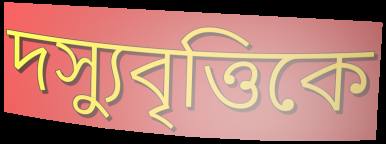
দস্যুবৃত্তিকে